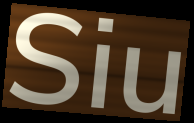
Siu